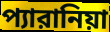
প্যারানিয়া